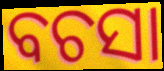
ବଚସା